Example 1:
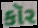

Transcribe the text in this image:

કૉર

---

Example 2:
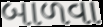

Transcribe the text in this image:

બાળવા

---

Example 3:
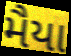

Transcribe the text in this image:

મૈયા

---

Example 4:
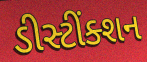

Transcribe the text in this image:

ડીસ્ટીંક્શન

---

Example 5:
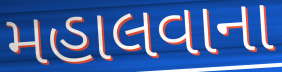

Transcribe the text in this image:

મહાલવાના